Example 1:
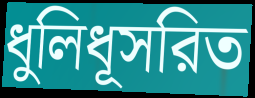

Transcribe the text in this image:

ধুলিধূসরিত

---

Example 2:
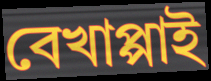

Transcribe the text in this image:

বেখাপ্পাই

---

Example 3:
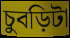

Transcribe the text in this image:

চুবড়িটা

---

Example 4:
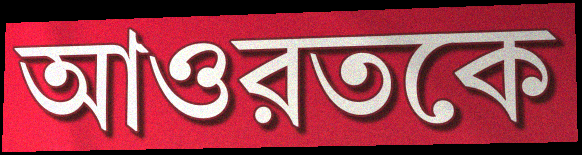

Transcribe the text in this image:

আওরতকে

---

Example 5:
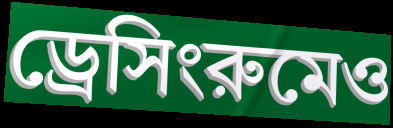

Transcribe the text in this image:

ড্রেসিংরুমেও